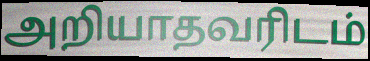
அறியாதவரிடம்